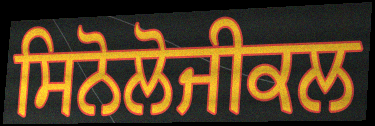
ਸਿਨੋਲੋਜੀਕਲ